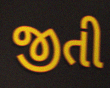
જીતી